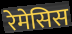
रेमेसिस